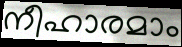
നീഹാരമാം